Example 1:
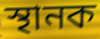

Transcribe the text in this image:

স্থানক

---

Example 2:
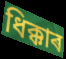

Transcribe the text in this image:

ধিক্কাৰ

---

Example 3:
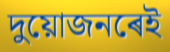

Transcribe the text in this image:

দুয়োজনৰেই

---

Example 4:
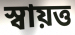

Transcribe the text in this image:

স্বায়ত্ত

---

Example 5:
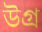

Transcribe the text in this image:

উগ্ৰ